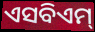
ଏସବିଏମ୍